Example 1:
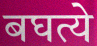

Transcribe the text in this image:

बघत्ये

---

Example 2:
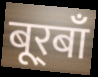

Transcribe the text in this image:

बूर्‌बाँ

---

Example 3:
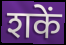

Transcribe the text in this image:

शकें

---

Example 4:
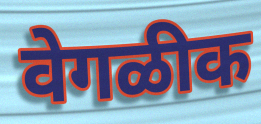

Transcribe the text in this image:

वेगळीक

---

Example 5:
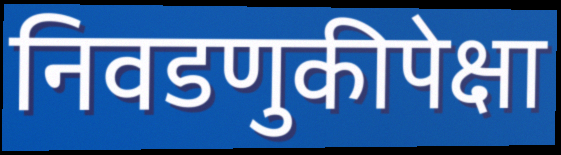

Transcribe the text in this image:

निवडणुकीपेक्षा